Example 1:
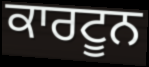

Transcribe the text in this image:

ਕਾਰਟੂਨ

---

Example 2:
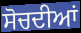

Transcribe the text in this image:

ਸੋਚਦੀਆਂ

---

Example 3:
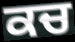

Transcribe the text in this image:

ਕਚ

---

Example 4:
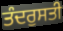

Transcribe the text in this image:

ਤੰਦਰੁਸਤੀ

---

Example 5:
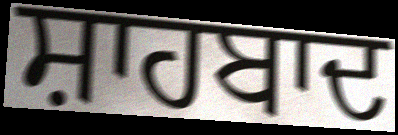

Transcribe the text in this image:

ਸ਼ਾਹਬਾਦ